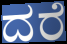
ದರೆ